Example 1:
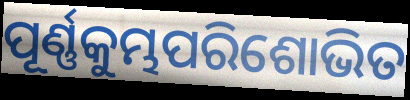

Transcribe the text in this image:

ପୂର୍ଣ୍ଣକୁମ୍ଭପରିଶୋଭିତ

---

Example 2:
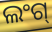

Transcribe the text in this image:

ଲଂଗ୍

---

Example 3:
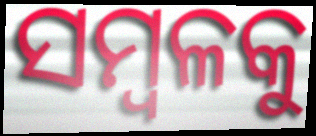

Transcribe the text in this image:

ସମ୍ବଳକୁ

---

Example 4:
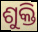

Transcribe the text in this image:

ଶୁକ୍ତି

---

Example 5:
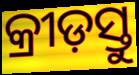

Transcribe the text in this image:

କ୍ରୀଡ଼ସ୍ତୁ